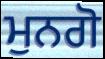
ਮੁਨਗੋ